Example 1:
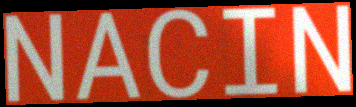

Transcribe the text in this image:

NACIN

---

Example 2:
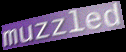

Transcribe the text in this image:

muzzled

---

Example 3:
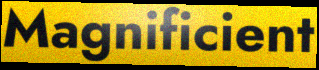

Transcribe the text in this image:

Magnificient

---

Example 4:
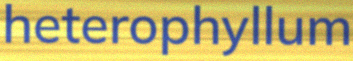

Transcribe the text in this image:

heterophyllum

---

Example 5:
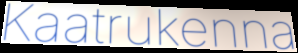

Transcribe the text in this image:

Kaatrukenna